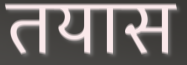
तयास